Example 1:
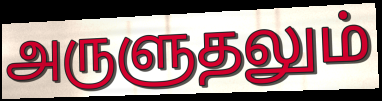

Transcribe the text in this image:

அருளுதலும்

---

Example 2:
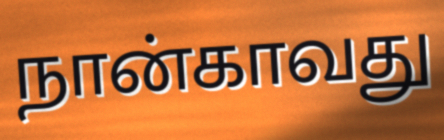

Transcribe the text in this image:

நான்காவது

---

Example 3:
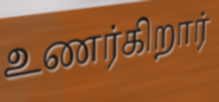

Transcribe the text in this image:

உணர்கிறார்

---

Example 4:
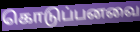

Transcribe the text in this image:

கொடுப்பனவை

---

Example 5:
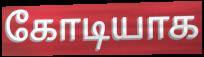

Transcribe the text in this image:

கோடியாக